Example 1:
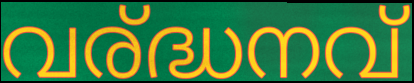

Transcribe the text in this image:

വര്ദ്ധനവ്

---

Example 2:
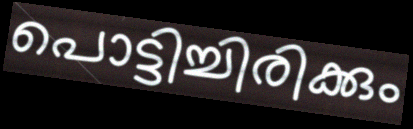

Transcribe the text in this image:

പൊട്ടിച്ചിരിക്കും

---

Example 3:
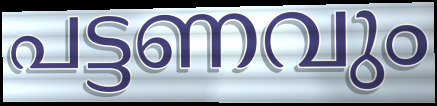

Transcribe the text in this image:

പട്ടണവും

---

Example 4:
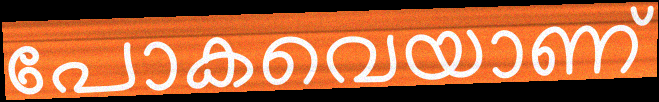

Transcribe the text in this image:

പോകവെയാണ്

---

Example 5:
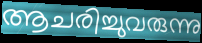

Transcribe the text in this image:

ആചരിച്ചുവരുന്നു